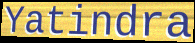
Yatindra